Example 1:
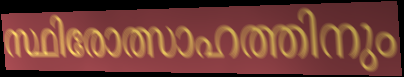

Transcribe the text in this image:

സ്ഥിരോത്സാഹത്തിനും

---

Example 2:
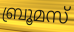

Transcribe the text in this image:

ബ്രൂമസ്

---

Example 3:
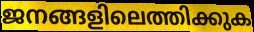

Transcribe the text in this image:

ജനങ്ങളിലെത്തിക്കുക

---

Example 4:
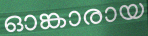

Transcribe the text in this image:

ഓങ്കാരായ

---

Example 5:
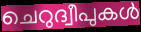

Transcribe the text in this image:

ചെറുദ്വീപുകൾ